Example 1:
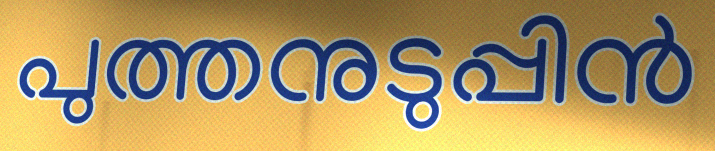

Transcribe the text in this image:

പുത്തനുടുപ്പിൻ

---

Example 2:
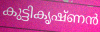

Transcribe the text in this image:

കുട്ടികൃഷ്ണൻ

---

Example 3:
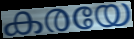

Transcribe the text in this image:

കരയേ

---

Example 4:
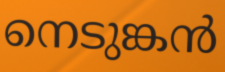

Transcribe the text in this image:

നെടുങ്കൻ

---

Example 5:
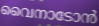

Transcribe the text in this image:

വൈനാടോൻ